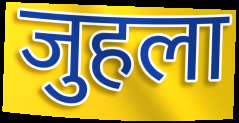
जुहला